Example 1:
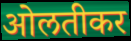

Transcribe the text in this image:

ओलतीकर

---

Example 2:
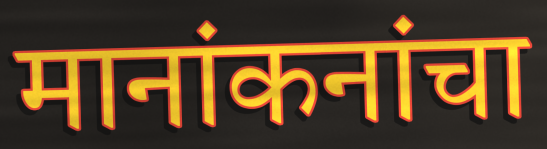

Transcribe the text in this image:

मानांकनांचा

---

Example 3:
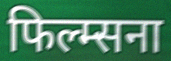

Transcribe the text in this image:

फिल्म्सना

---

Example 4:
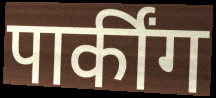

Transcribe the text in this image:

पार्कींग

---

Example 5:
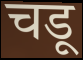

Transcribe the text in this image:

चडू